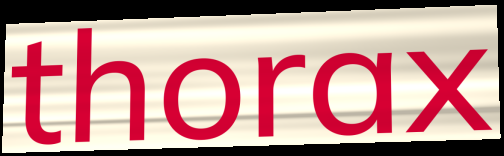
thorax